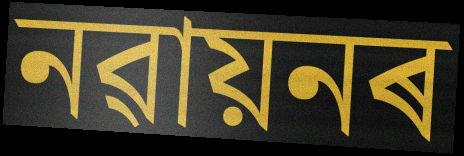
নৱায়নৰ